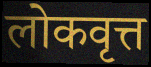
लोकवृत्त